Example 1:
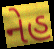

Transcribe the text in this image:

નેહ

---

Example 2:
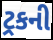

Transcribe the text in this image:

ટ્રકની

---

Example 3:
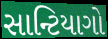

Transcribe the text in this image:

સાન્ટિયાગો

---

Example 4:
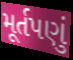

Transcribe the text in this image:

મૂર્તપણું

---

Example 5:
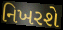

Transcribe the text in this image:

નિખરશે